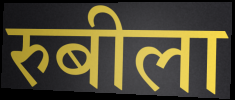
रुबीला